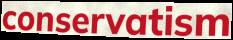
conservatism